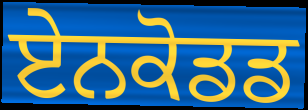
ਏਨਕੋਡਡ